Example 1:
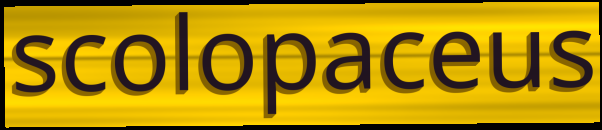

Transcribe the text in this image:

scolopaceus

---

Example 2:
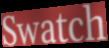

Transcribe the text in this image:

Swatch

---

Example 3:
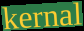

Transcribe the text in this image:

kernal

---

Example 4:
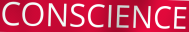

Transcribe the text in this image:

CONSCIENCE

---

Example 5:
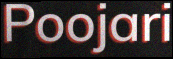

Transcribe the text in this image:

Poojari